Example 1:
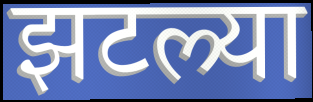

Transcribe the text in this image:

झटल्या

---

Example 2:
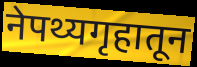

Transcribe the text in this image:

नेपथ्यगृहातून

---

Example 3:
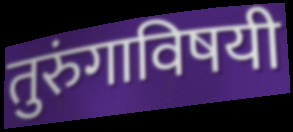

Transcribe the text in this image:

तुरुंगाविषयी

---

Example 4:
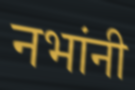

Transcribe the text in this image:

नभांनी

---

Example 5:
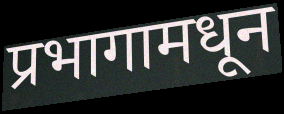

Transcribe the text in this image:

प्रभागामधून